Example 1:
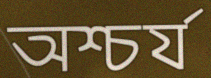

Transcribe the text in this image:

অশ্চর্য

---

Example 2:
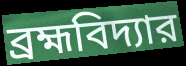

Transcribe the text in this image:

ব্রহ্মবিদ্যার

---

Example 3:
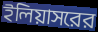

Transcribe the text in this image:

ইলিয়াসরের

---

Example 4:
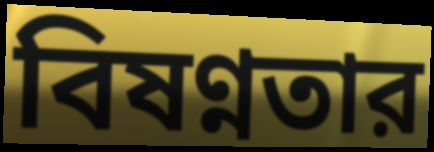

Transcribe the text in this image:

বিষণ্নতার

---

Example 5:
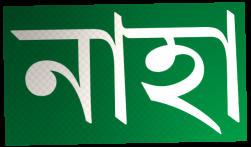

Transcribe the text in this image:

নাহা